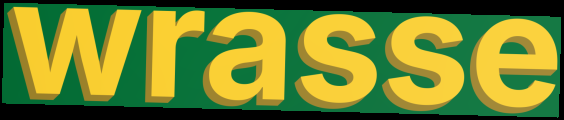
wrasse